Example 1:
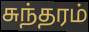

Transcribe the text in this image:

சுந்தரம்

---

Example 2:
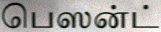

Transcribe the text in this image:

பெஸன்ட்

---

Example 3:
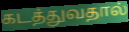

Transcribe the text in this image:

கடத்துவதால்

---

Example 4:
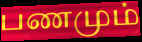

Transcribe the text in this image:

பணமும்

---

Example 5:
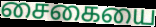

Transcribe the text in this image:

சைகையை